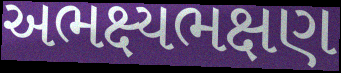
અભક્ષ્યભક્ષણ